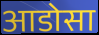
आडोसा